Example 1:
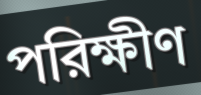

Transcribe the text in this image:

পরিক্ষীণ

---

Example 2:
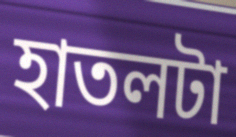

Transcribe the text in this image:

হাতলটা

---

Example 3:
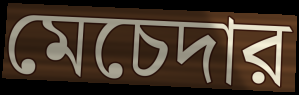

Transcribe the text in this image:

মেচেদার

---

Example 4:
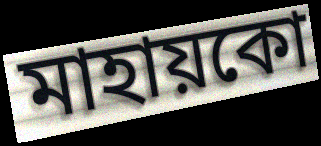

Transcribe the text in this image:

মাহায়কো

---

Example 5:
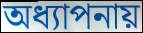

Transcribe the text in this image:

অধ্যাপনায়